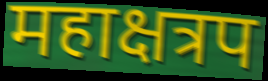
महाक्षत्रप